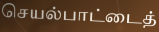
செயல்பாட்டைத்